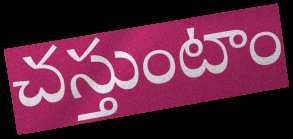
చస్తుంటాం